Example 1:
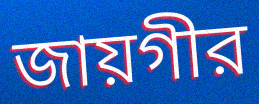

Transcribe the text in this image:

জায়গীর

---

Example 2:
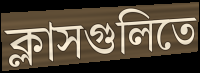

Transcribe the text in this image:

ক্লাসগুলিতে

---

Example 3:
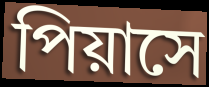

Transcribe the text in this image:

পিয়াসে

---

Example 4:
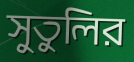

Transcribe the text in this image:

সুতুলির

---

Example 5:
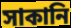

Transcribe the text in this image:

সাকানি